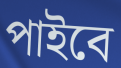
পাইবে